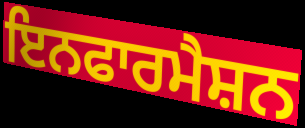
ਇਨਫਾਰਮੈਸ਼ਨ